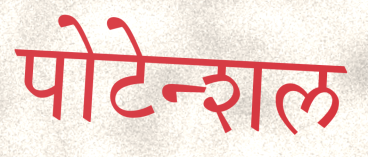
पोटेन्शल